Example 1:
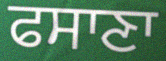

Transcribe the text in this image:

ਫਸਾਣਾ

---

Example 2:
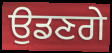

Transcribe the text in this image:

ਉਡਣਗੇ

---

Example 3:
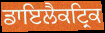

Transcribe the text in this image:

ਡਾਇਲੈਕਟ੍ਰਿਕ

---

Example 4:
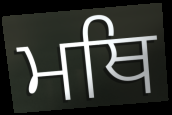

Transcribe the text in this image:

ਮਥਿ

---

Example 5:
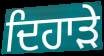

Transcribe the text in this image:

ਦਿਹਾਡ਼ੇ